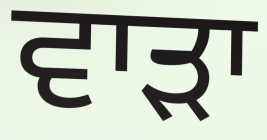
ਵਾੜਾ